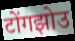
टोंगझोउ